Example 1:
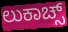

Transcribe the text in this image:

ಲುಕಾಚ್ಸ್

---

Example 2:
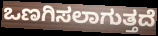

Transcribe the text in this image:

ಒಣಗಿಸಲಾಗುತ್ತದೆ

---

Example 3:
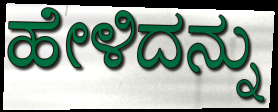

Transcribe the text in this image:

ಹೇಳಿದನ್ನು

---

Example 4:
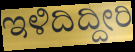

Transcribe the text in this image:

ಇಳಿದಿದ್ದೀರಿ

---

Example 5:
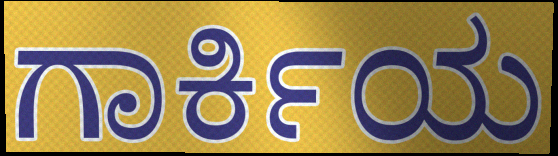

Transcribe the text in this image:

ಗಾರ್ಕಿಯ